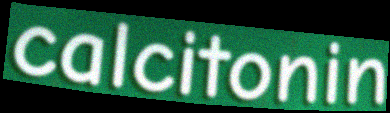
calcitonin